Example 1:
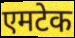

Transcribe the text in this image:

एमटेक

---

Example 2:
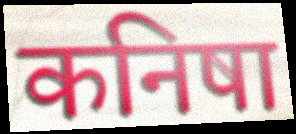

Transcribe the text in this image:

कनिषा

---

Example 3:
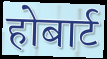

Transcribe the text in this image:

होबार्ट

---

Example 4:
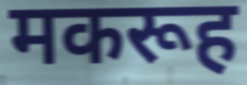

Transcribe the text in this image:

मकरूह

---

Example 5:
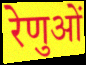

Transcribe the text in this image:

रेणुओं